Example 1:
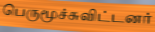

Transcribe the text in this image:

பெருமூச்சுவிட்டனர்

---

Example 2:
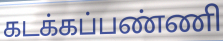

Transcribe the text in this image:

கடக்கப்பண்ணி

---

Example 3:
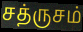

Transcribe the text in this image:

சத்ருசம்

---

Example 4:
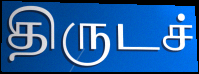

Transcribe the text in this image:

திருடச்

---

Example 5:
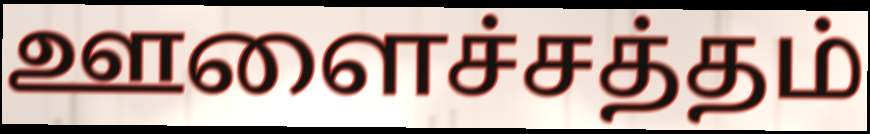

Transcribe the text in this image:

ஊளைச்சத்தம்